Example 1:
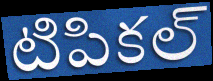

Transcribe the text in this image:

టిపికల్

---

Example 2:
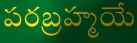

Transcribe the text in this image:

పరబ్రహ్మయే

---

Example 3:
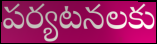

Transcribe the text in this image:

పర్యటనలకు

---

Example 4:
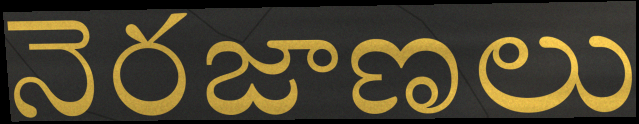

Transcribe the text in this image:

నెరజాణలు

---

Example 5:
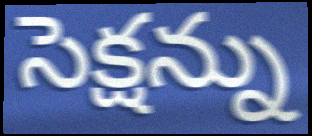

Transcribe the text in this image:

సెక్షన్ను